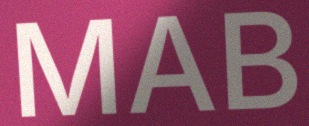
MAB